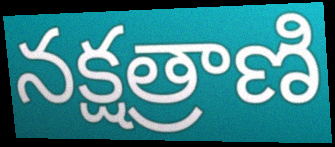
నక్షత్రాణి